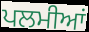
ਪਲਮੀਆਂ